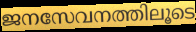
ജനസേവനത്തിലൂടെ